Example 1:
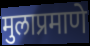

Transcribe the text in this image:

मुलाप्रमाणे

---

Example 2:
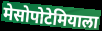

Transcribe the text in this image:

मेसोपोटेमियाला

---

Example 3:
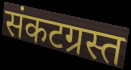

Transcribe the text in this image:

संकटग्रस्त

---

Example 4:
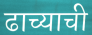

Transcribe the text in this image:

ढाच्याची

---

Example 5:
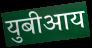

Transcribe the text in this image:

युबीआय